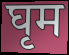
घृम